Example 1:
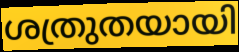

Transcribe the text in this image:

ശത്രുതയായി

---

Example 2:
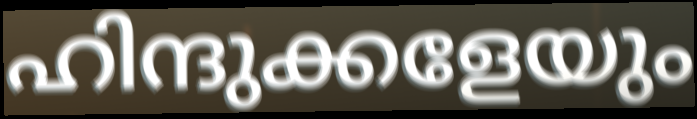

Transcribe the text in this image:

ഹിന്ദുക്കളേയും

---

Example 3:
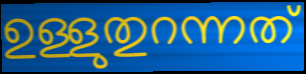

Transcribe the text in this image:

ഉള്ളുതുറന്നത്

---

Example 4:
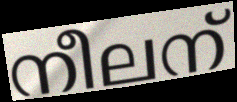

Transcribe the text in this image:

നീലന്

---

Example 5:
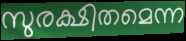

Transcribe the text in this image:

സുരക്ഷിതമെന്ന